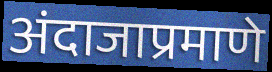
अंदाजाप्रमाणे